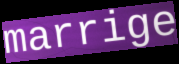
marrige